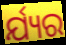
ର୍ଯ୍ୟର